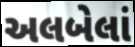
અલબેલાં